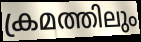
ക്രമത്തിലും